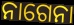
ନାଗେନା